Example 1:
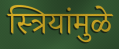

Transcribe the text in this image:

स्त्रियांमुळे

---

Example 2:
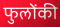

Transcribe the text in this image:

फुलोंकी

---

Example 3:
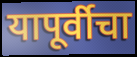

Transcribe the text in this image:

यापूर्वीचा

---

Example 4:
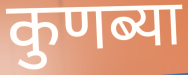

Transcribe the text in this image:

कुणब्या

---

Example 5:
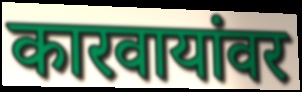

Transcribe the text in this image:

कारवायांवर